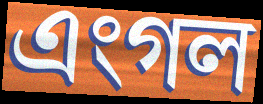
এংগল